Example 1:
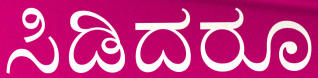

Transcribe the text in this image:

ಸಿಡಿದರೂ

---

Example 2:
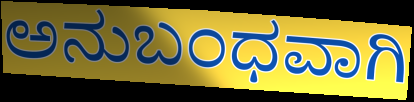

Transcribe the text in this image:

ಅನುಬಂಧವಾಗಿ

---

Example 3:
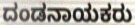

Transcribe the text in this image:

ದಂಡನಾಯಕರು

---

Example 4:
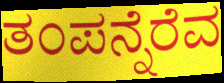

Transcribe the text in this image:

ತಂಪನ್ನೆರೆವ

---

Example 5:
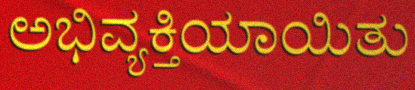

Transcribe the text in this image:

ಅಭಿವ್ಯಕ್ತಿಯಾಯಿತು